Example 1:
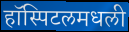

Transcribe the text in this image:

हॉस्पिटलमधली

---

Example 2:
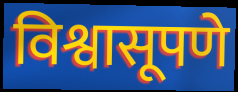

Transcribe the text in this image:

विश्वासूपणे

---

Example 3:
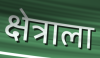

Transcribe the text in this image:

क्षेत्राला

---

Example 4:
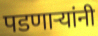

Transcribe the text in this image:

पडणाऱ्यांनी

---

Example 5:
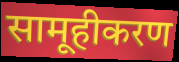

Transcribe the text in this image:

सामूहीकरण